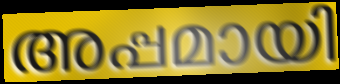
അപ്പമായി